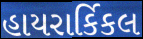
હાયરાર્કિકલ